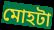
মোহটা